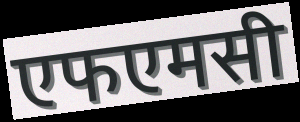
एफएमसी